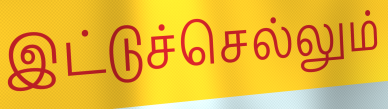
இட்டுச்செல்லும்